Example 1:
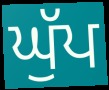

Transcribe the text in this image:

ਘੁੱਪ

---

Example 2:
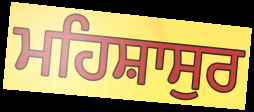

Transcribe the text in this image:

ਮਹਿਸ਼ਾਸੁਰ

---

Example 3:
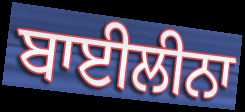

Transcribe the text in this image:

ਬਾਈਲੀਨਾ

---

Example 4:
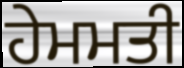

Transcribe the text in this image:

ਹੇਮਮਤੀ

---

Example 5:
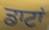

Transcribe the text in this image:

ਡਾਟਾਂ